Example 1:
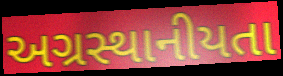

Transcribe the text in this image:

અગ્રસ્થાનીયતા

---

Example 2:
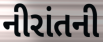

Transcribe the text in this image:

નીરાંતની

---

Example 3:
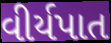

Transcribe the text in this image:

વીર્યપાત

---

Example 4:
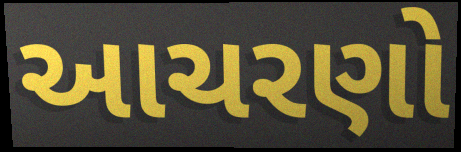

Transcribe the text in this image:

આચરણો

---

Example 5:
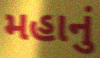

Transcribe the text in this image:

મહાનું